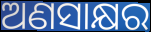
ଅଣସାକ୍ଷର